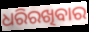
ଧରିରଖିବାର